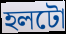
হলটো